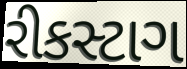
રીકસ્ટાગ